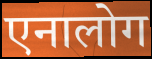
एनालोग